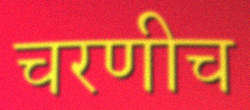
चरणीच